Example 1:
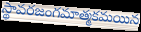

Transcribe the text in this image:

స్థావరజంగమాత్మకమయిన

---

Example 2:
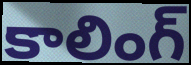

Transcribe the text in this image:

కాలింగ్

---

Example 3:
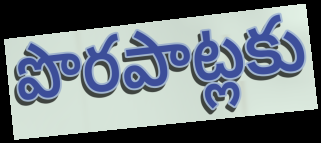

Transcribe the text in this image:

పొరపాట్లకు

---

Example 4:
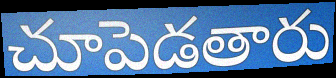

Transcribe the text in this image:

చూపెడతారు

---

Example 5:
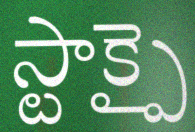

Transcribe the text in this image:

స్టాక్పై